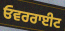
ਓਵਰਰਾਈਟ